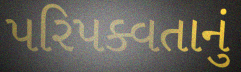
પરિપક્વતાનું